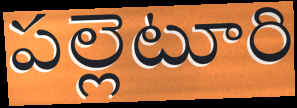
పల్లెటూరి